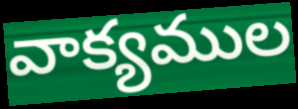
వాక్యముల